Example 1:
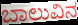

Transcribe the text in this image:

ಬಾಲುವಿನ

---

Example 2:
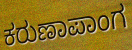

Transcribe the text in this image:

ಕರುಣಾಪಾಂಗ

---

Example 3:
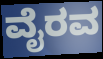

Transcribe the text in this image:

ವೈರವ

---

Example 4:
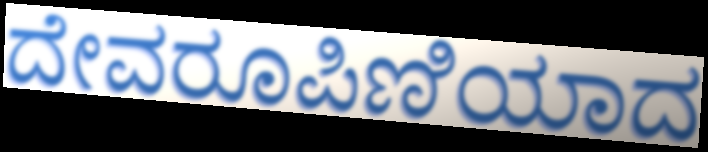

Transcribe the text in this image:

ದೇವರೂಪಿಣಿಯಾದ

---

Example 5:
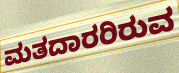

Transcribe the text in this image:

ಮತದಾರರಿರುವ